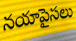
నయాపైసలు